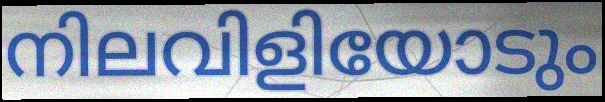
നിലവിളിയോടും